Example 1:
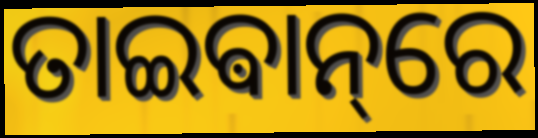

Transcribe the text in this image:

ତାଇଵାନ୍‌ରେ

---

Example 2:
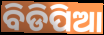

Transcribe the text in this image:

ବିଡିପିଆ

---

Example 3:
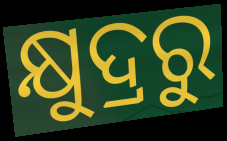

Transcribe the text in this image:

କ୍ଷୁଦ୍ରରୁ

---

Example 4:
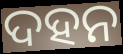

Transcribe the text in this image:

ଦହନ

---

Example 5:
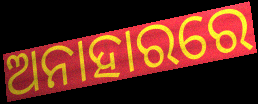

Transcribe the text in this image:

ଅନାହାରରେ